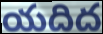
యదిద